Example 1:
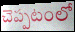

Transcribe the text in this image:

చెప్పటంలో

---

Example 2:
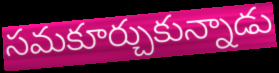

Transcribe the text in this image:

సమకూర్చుకున్నాడు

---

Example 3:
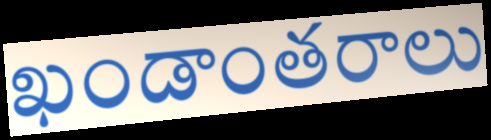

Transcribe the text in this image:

ఖండాంతరాలు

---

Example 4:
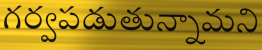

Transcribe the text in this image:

గర్వపడుతున్నామని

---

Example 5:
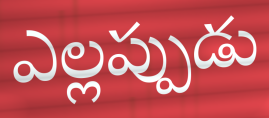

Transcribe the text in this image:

ఎల్లప్పుడు